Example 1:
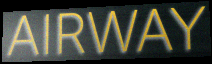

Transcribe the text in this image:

AIRWAY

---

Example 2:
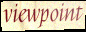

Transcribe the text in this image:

viewpoint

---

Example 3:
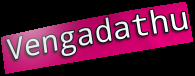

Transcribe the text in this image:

Vengadathu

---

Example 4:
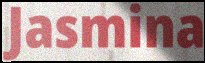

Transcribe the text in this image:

Jasmina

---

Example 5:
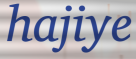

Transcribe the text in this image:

hajiye